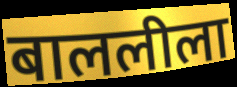
बाललीला